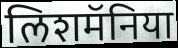
लिशमॅनिया